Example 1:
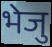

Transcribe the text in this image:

भेजु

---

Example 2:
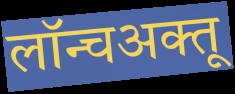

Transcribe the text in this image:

लॉन्चअक्तू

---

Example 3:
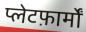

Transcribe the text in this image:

प्लेटफ़ार्मों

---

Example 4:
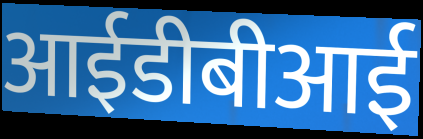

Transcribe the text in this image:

आईडीबीआई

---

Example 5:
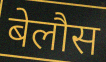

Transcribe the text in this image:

बेलौस